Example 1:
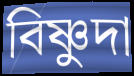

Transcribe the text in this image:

বিষ্ণুদা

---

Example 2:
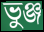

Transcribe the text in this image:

ভুঞ্জ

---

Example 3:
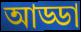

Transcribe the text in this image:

আড্ডা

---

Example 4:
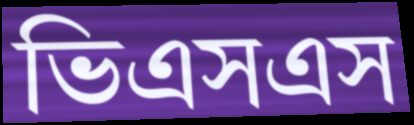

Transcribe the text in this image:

ভিএসএস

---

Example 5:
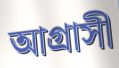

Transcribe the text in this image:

আগ্রাসী